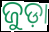
ଜୁଡ଼ା